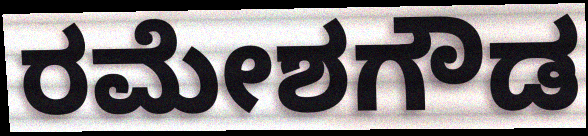
ರಮೇಶಗೌಡ